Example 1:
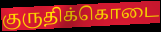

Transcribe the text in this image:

குருதிக்கொடை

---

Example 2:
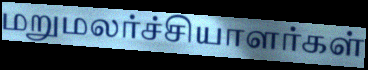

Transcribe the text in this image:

மறுமலர்ச்சியாளர்கள்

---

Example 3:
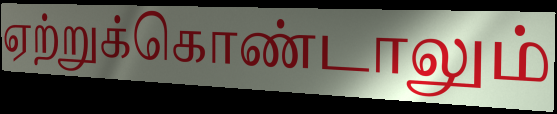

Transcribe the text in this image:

ஏற்றுக்கொண்டாலும்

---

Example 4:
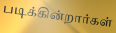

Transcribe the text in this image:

படிக்கின்றார்கள்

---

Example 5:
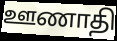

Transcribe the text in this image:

ஊணாதி